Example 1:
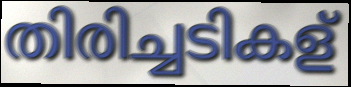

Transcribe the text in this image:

തിരിച്ചടികള്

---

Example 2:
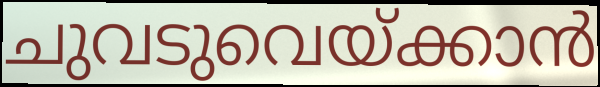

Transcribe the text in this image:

ചുവടുവെയ്ക്കാൻ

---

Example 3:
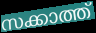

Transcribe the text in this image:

സക്കാത്ത്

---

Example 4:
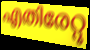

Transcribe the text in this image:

എതിരേറ്റു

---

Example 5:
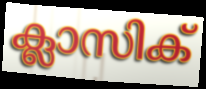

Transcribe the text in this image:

ക്ലാസിക്